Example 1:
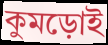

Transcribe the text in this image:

কুমড়োই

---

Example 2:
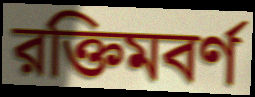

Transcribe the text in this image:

রক্তিমবর্ণ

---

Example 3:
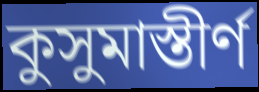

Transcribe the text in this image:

কুসুমাস্তীর্ণ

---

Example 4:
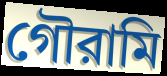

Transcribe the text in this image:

গৌরামি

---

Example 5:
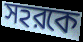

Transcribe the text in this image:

সহরকে